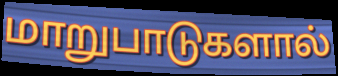
மாறுபாடுகளால்